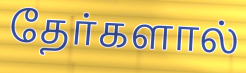
தேர்களால்